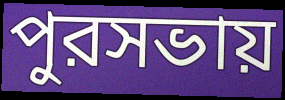
পুরসভায়